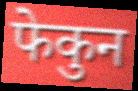
फेकुन